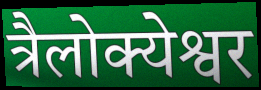
त्रैलोक्येश्वर